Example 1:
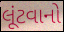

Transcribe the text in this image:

લૂંટવાનો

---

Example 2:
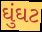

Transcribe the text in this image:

ઘુંઘટ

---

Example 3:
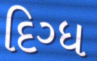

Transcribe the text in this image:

દિગ્ધ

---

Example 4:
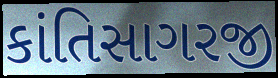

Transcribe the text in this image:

કાંતિસાગરજી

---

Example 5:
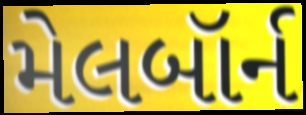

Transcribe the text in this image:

મેલબૉર્ન